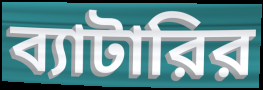
ব্যাটারির